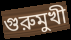
গুরুমুখী